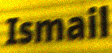
Ismail